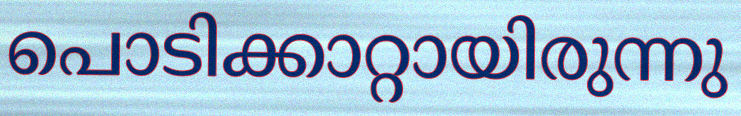
പൊടിക്കാറ്റായിരുന്നു